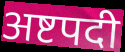
अष्टपदी